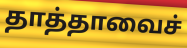
தாத்தாவைச்